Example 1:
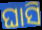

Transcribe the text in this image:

ଘାସି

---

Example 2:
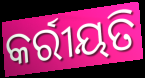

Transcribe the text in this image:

କର୍ରୀୟତି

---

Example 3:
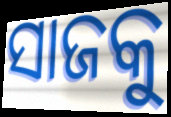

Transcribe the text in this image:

ସାଜକୁ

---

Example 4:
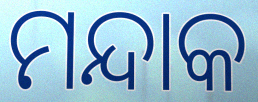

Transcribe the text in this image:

ମନ୍ଦାକ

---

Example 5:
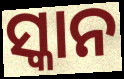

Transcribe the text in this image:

ସ୍କାନ